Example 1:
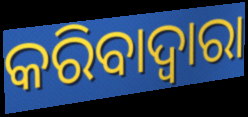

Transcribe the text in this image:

କରିବାଦ୍ବାରା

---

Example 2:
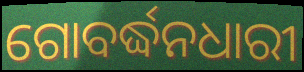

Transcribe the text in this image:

ଗୋବର୍ଦ୍ଧନଧାରୀ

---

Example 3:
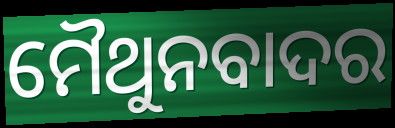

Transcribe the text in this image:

ମୈଥୁନବାଦର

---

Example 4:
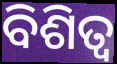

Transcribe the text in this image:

ବିଶିତ୍ଵ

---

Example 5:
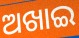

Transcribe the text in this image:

ଅଖାଇ